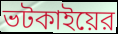
ভটকাইয়ের